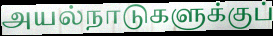
அயல்நாடுகளுக்குப்